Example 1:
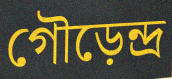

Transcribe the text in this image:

গৌড়েন্দ্র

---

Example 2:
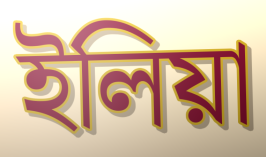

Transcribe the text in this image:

ইলিয়া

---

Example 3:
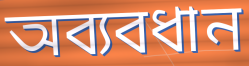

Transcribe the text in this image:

অব্যবধান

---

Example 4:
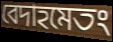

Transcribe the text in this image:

বেদাহমেতং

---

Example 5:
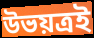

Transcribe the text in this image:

উভয়ত্রই